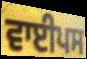
ਵਾਈਪਸ